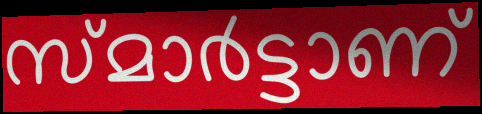
സ്മാർട്ടാണ്